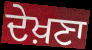
ਦੇਖ਼ਣਾ